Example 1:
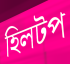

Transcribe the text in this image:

হিলটপ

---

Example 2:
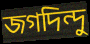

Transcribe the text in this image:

জগদিন্দু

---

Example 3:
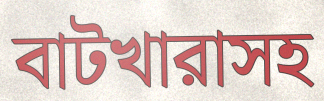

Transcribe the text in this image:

বাটখারাসহ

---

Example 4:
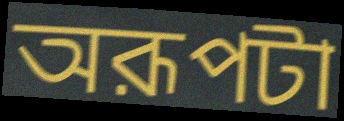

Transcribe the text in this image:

অরূপটা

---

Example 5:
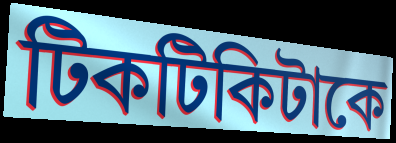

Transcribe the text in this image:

টিকটিকিটাকে